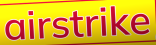
airstrike